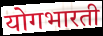
योगभारती